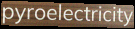
pyroelectricity